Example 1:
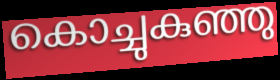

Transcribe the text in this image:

കൊച്ചുകുഞ്ഞു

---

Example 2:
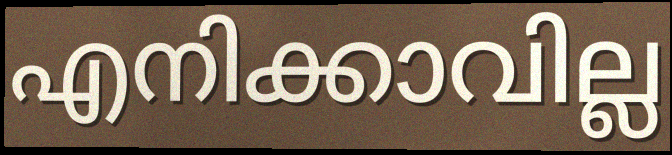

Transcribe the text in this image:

എനിക്കാവില്ല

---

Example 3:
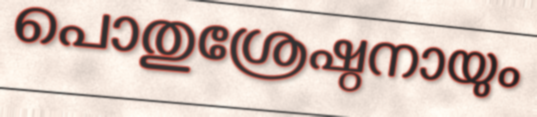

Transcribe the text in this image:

പൊതുശ്രേഷ്ഠനായും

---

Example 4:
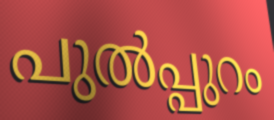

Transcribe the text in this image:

പുൽപ്പുറം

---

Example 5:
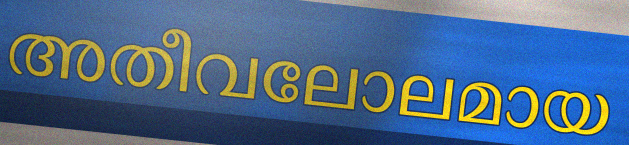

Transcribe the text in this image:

അതീവലോലമായ